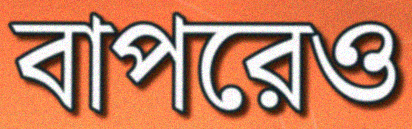
বাপরেও